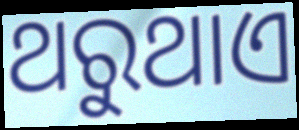
ଥରୁଥାଏ